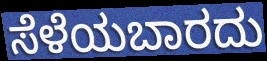
ಸೆಳೆಯಬಾರದು